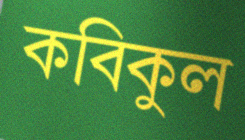
কবিকুল